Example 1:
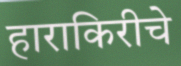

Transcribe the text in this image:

हाराकिरीचे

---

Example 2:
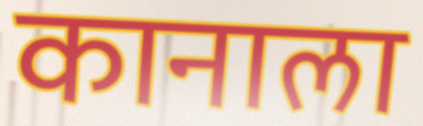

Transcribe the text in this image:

कानाला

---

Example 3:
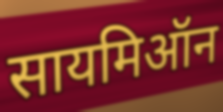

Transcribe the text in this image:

सायमिऑन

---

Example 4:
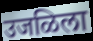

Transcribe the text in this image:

उजळिला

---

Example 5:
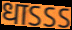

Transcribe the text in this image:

धाऽऽऽ